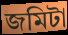
জমিটা